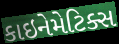
કાઇનેમેટિક્સ